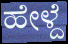
ಹೇಳ್ದೆ